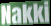
Nakki